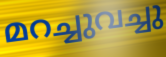
മറച്ചുവച്ചു